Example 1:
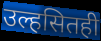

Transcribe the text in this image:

उल्हसितही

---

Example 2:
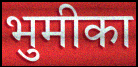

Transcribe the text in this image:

भुमीका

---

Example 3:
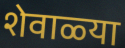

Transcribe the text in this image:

शेवाळ्या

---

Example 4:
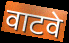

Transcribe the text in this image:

वाटवे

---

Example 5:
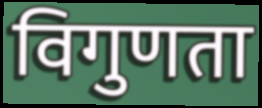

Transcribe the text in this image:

विगुणता